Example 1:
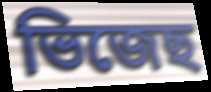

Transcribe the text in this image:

ভিজেছ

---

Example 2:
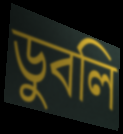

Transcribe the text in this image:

ডুবলি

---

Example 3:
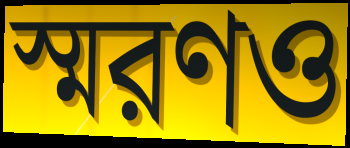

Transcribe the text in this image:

স্মরণও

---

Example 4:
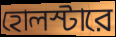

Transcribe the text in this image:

হোলস্টারে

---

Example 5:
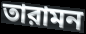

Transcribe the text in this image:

তারামন